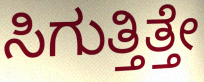
ಸಿಗುತ್ತಿತ್ತೇ